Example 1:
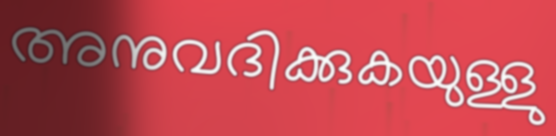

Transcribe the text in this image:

അനുവദിക്കുകയുള്ളു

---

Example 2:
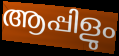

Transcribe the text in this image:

ആപ്പിളും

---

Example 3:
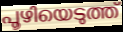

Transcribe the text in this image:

പൂഴിയെടുത്ത്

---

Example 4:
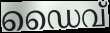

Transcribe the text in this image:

ഡൈവ്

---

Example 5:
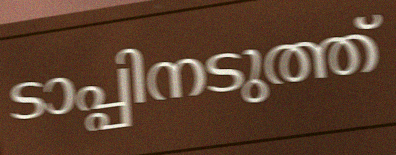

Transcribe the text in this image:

ടാപ്പിനടുത്ത്